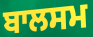
ਬਾਲਸਮ